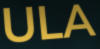
ULA